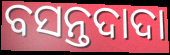
ବସନ୍ତଦାଦା